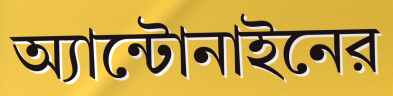
অ্যান্টোনাইনের